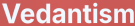
Vedantism